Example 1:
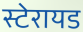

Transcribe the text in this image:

स्टेरायड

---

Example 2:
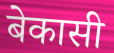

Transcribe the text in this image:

बेकासी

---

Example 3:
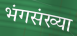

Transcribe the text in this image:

भंगसंख्या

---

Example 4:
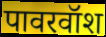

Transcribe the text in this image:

पावरवॉश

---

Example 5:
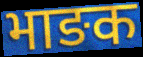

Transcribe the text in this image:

भाङक